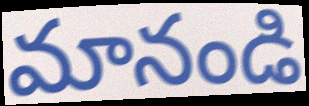
మానండి